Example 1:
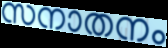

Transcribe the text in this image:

സനാതനം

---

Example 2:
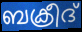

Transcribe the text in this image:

ബക്രീദ്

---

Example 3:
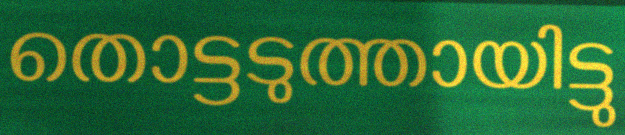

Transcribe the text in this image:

തൊട്ടടുത്തായിട്ടു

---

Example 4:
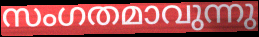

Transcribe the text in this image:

സംഗതമാവുന്നു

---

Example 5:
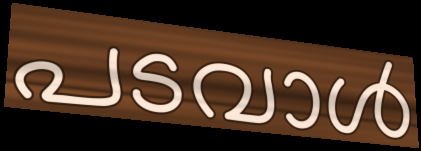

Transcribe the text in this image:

പടവാൾ